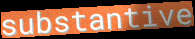
substantive